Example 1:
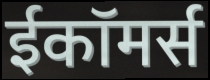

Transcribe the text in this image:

ईकॉमर्स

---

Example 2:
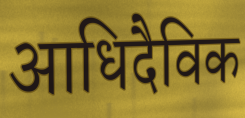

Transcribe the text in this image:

आधिदैविक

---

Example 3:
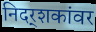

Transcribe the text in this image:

निदर्शकांवर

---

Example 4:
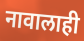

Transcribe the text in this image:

नावालाही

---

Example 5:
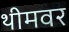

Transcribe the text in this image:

थीमवर